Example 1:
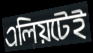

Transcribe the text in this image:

এলিয়টেই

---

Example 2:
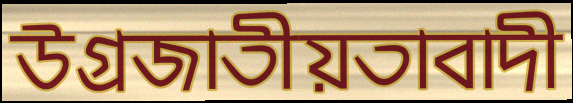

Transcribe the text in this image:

উগ্ৰজাতীয়তাবাদী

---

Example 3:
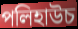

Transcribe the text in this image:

পলিহাউচ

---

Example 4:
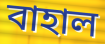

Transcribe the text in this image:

বাহাল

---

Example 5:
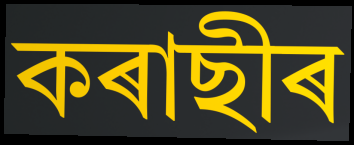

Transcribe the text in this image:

কৰাছীৰ